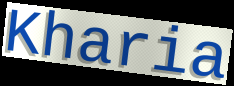
Kharia